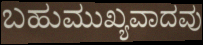
ಬಹುಮುಖ್ಯವಾದವು